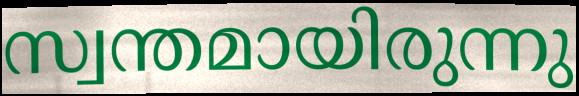
സ്വന്തമായിരുന്നു